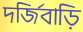
দর্জিবাড়ি